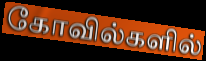
கோவில்களில்